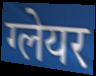
ग्लेयर